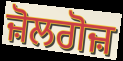
ਜ਼ੋਲਗੋਜ਼